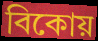
বিকোয়